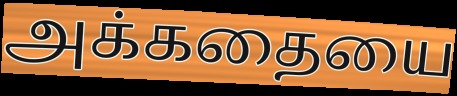
அக்கதையை